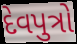
દેવપુત્રો